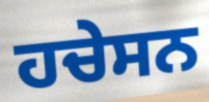
ਹਚੇਸਨ